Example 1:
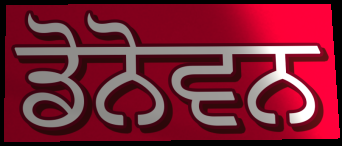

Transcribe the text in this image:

ਡੋਨੋਵਨ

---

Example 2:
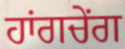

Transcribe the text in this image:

ਹਾਂਗਚੇਂਗ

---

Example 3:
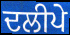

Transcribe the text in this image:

ਦਲੀਪੇ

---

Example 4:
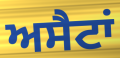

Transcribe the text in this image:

ਅਸੈਟਾਂ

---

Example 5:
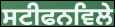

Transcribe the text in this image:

ਸਟੀਫਨਵਿਲੇ